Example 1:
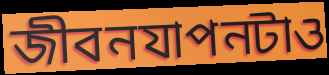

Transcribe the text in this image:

জীবনযাপনটাও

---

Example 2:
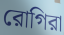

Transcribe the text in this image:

রোগিরা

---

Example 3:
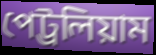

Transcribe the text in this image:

পেট্রলিয়াম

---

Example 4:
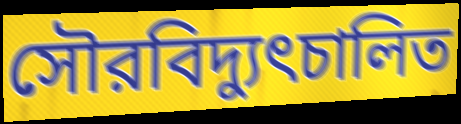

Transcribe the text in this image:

সৌরবিদ্যুৎচালিত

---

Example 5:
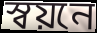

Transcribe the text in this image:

স্বয়নে